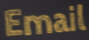
Email